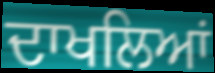
ਦਾਖਲਿਆਂ